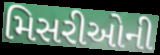
મિસરીઓની